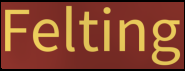
Felting